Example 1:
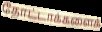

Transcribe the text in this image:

தோட்டாக்களைக்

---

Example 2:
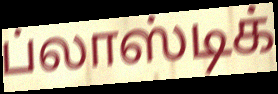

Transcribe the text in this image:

ப்லாஸ்டிக்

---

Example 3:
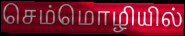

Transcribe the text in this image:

செம்மொழியில்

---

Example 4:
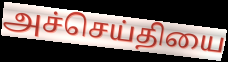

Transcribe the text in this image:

அச்செய்தியை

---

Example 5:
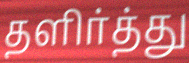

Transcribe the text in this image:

தளிர்த்து